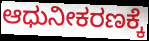
ಆಧುನೀಕರಣಕ್ಕೆ